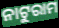
ନାଟୁରାମ